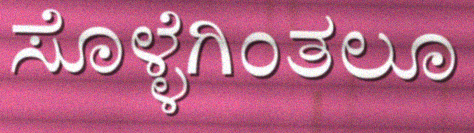
ಸೊಳ್ಳೆಗಿಂತಲೂ